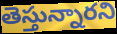
తెస్తున్నారని